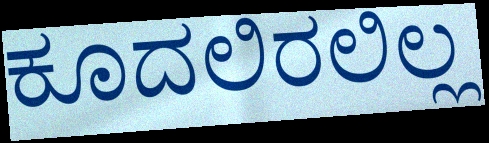
ಕೂದಲಿರಲಿಲ್ಲ